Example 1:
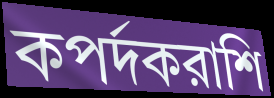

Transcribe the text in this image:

কপর্দকরাশি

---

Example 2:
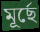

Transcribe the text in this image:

মূর্ছে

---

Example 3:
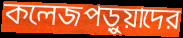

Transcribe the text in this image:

কলেজপড়ুয়াদের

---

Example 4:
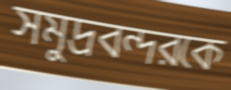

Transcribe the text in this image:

সমুদ্রবন্দরকে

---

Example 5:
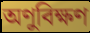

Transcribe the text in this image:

অণুবিক্ষণ